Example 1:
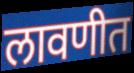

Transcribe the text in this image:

लावणीत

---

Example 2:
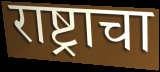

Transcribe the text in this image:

राष्ट्राचा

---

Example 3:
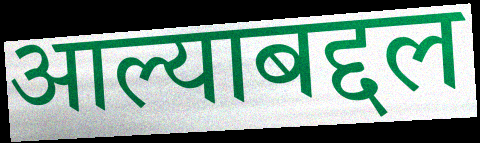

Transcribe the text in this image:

आल्याबद्दल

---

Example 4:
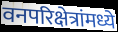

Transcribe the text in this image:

वनपरिक्षेत्रांमध्ये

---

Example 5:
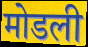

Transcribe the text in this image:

मोडली